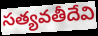
సత్యవతీదేవి